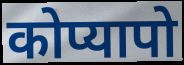
कोप्यापो